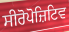
ਸੀਰੋਪੋਜ਼ਿਟਿਵ